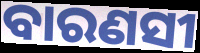
ବାରଣସୀ